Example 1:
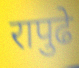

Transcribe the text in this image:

रापुढे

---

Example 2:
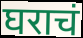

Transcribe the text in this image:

घराचं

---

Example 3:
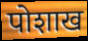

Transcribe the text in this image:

पोशाख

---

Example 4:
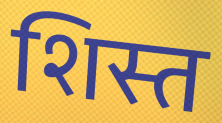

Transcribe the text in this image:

शिस्त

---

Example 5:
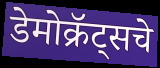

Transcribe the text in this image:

डेमोक्रॅट्सचे